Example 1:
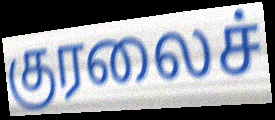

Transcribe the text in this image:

குரலைச்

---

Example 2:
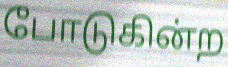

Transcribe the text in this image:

போடுகின்ற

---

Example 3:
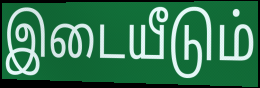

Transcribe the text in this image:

இடையீடும்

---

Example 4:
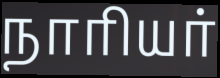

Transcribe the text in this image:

நாரியர்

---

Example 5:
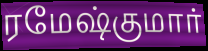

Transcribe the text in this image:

ரமேஷ்குமார்